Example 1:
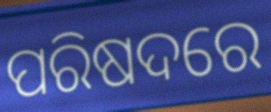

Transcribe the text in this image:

ପରିଷଦରେ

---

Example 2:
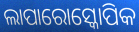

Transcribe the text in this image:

ଲାପାରୋସ୍କୋପିକ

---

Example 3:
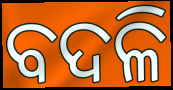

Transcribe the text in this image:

ବଦଳି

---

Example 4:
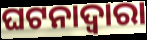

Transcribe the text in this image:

ଘଟନାଦ୍ୱାରା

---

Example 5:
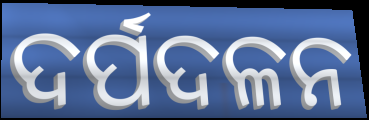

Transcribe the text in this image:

ଦର୍ପଦଳନ